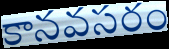
కానవసరం